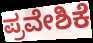
ಪ್ರವೇಶಿಕೆ